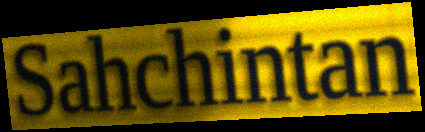
Sahchintan